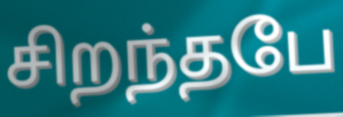
சிறந்தபே